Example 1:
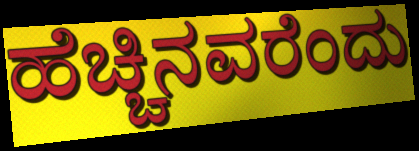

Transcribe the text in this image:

ಹೆಚ್ಚಿನವರೆಂದು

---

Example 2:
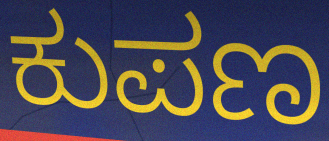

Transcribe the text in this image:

ಕುಪಣ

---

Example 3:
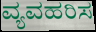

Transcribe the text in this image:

ವ್ಯವಹರಿಸ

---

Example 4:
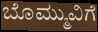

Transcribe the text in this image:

ಬೊಮ್ಮುವಿಗೆ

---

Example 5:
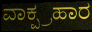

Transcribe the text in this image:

ವಾಕ್ಪ್ರಹಾರ